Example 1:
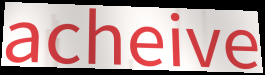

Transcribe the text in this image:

acheive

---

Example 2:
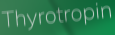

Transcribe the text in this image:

Thyrotropin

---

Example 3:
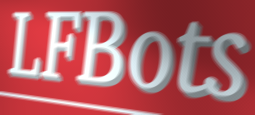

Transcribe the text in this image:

LFBots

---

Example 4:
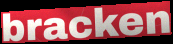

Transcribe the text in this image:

bracken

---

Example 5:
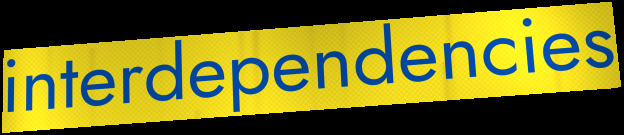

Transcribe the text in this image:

interdependencies